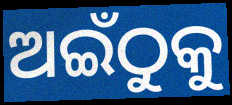
ଅଇଁଠୁକୁ